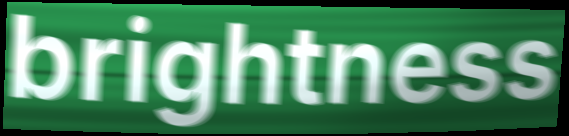
brightness